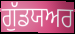
ਗੁੱਡਯਅਰ